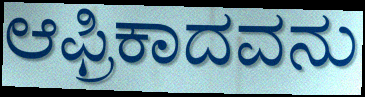
ಆಫ್ರಿಕಾದವನು